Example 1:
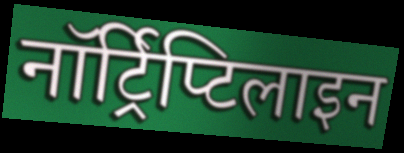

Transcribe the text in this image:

नॉर्ट्रिप्टिलाइन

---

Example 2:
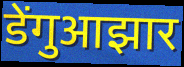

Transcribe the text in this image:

डेंगुआझार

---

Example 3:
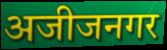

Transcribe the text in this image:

अजीजनगर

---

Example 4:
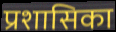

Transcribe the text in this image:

प्रशासिका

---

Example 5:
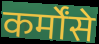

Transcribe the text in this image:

कर्मोंसे